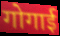
गोगाई